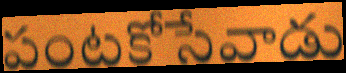
పంటకోసేవాడు